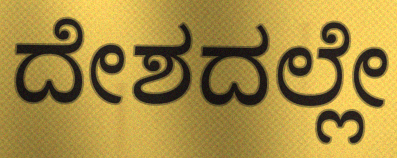
ದೇಶದಲ್ಲೇ